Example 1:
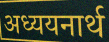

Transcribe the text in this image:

अध्ययनार्थ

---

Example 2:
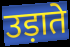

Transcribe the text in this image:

उड़ाते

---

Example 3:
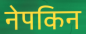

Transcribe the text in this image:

नेपकिन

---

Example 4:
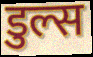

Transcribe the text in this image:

डुल्स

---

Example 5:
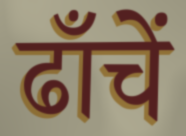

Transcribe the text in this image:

ढाँचें